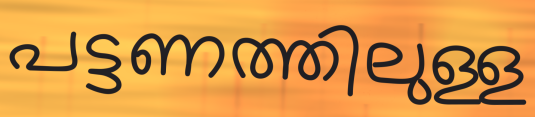
പട്ടണത്തിലുള്ള